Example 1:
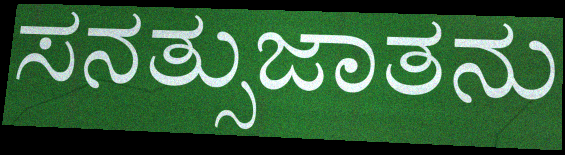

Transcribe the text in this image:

ಸನತ್ಸುಜಾತನು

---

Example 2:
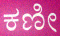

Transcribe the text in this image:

ಕಣೀ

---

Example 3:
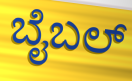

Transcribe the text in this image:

ಬೈಬಲ್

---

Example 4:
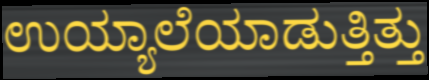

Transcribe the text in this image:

ಉಯ್ಯಾಲೆಯಾಡುತ್ತಿತ್ತು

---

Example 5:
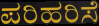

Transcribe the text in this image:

ಪರಿಹರಿಸೆ